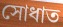
সোধাত